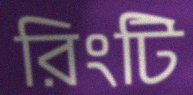
রিংটি